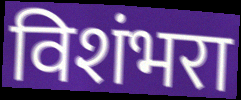
विशंभरा